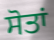
ਸੋਤਾਂ